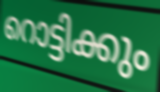
റൊട്ടിക്കും